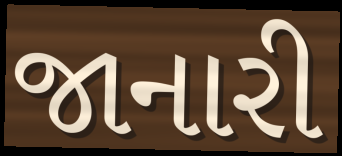
જાનારી